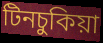
টিনচুকিয়া